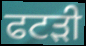
ਫਟੜੀ